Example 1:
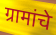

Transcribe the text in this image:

ग्रामांचे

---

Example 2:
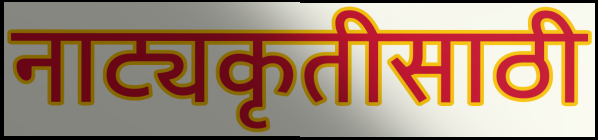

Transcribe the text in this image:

नाट्यकृतीसाठी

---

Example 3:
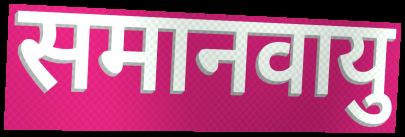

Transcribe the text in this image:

समानवायु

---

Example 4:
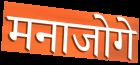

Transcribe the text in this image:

मनाजोगे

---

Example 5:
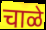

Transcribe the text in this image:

चाळे